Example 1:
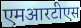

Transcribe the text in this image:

एमआरटीएस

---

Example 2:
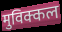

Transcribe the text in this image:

मुविक्कल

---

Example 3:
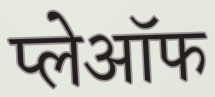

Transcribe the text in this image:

प्‍लेऑफ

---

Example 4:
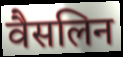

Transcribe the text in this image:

वैसलिन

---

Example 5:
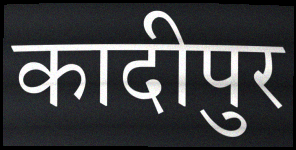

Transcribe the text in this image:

कादीपुर